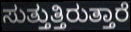
ಸುತ್ತುತ್ತಿರುತ್ತಾರೆ